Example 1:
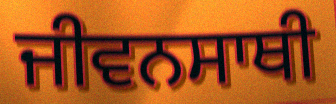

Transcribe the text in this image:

ਜੀਵਨਸਾਥੀ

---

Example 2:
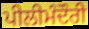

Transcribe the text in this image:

ਪੀਲੀਮੰਦੌਰੀ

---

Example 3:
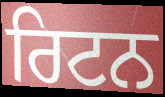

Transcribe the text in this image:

ਰਿਟਨ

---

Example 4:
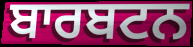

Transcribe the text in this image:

ਬਾਰਬਟਨ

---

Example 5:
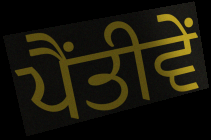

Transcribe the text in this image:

ਪੈਂਤੀਵੇਂ